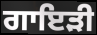
ਗਾਇੜੀ